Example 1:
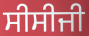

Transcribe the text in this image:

ਸੀਸੀਜੀ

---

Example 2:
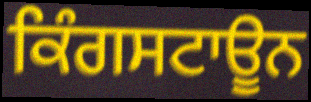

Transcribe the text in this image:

ਕਿੰਗਸਟਾਊਨ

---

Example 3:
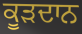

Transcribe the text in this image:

ਕੂੜਦਾਨ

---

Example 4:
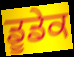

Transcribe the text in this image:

ਡੂਡੇਕ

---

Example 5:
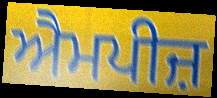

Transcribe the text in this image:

ਐਮਪੀਜ਼